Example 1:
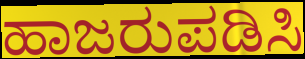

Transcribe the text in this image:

ಹಾಜರುಪಡಿಸಿ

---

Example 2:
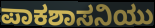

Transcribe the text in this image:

ಪಾಕಶಾಸನಿಯು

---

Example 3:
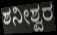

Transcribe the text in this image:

ಶನೀಶ್ವರ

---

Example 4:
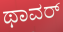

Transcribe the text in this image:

ಥಾವರ್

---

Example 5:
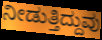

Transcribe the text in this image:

ನೀಡುತ್ತಿದ್ದುವು